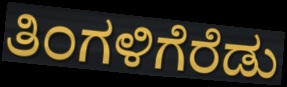
ತಿಂಗಳಿಗೆರೆಡು